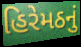
હિરેમઠનું